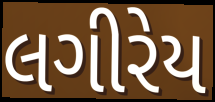
લગીરેય